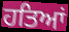
ਹਤਿਆਂ